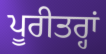
ਪੂਰੀਤਰ੍ਹਾਂ